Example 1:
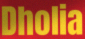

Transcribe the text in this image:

Dholia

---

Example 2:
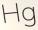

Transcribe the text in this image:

Hg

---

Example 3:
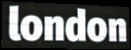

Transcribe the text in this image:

london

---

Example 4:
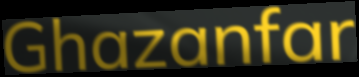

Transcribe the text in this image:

Ghazanfar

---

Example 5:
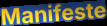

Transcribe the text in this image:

Manifeste